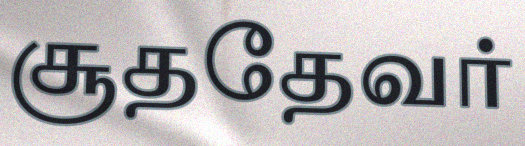
சூததேவர்